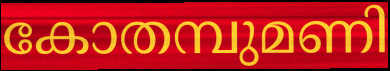
കോതമ്പുമണി